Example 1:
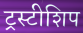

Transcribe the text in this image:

ट्रस्टीशिप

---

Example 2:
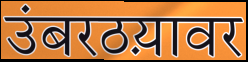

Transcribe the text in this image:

उंबरठय़ावर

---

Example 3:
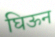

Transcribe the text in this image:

घिऊन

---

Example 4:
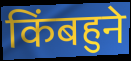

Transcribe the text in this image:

किंबहुने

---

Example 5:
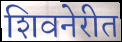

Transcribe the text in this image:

शिवनेरीत